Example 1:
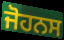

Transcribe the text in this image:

ਜੋਹਨਸ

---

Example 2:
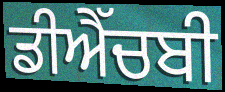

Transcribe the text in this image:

ਡੀਐੱਚਬੀ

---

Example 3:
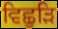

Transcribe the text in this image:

ਵਿਛੁੜਿ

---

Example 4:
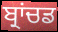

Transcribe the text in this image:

ਬ੍ਰਾਂਚਡ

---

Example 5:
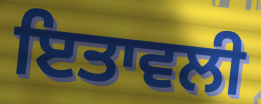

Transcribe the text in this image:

ਇਤਾਵਲੀ